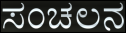
ಸಂಚಲನ